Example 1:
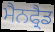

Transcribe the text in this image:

ਮੈਨਫ੍ਰੈਡ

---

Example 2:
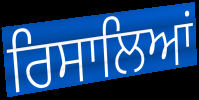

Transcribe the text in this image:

ਰਿਸਾਲਿਆਂ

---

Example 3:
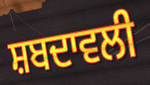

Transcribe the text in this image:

ਸ਼ਬਦਾਵਲੀ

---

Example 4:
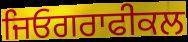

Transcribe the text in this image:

ਜਿਓਗਰਾਫੀਕਲ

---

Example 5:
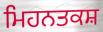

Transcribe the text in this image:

ਮਿਹਨਤਕਸ਼